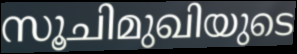
സൂചിമുഖിയുടെ